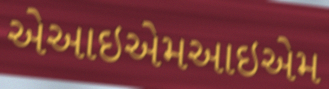
એઆઇએમઆઇએમ